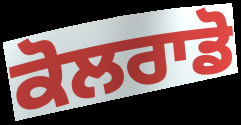
ਕੋਲਰਾਡੋ